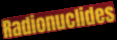
Radionuclides